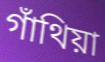
গাঁথিয়া